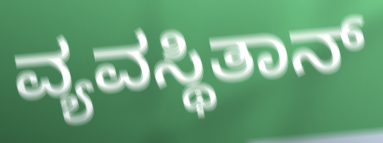
ವ್ಯವಸ್ಥಿತಾನ್